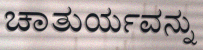
ಚಾತುರ್ಯವನ್ನು